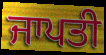
ਜਾਪਤੀ